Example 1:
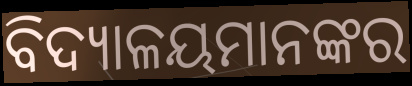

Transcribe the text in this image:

ବିଦ୍ୟାଳୟମାନଙ୍କର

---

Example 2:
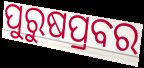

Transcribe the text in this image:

ପୁରୁଷପ୍ରବର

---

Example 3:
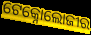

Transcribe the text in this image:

ଟେକ୍ନୋଲୋଜୀର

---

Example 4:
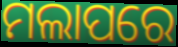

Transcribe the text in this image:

ମଲାପରେ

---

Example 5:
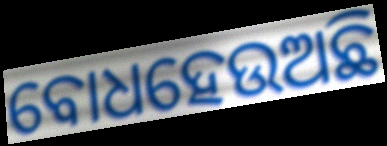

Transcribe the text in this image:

ବୋଧହେଉଅଛି